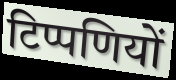
टिप्पणियों